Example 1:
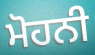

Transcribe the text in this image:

ਮੋਹਨੀ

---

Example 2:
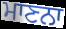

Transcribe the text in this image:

ਮਾਣਨਾ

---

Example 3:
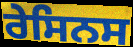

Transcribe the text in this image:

ਰੇਸਿਨਸ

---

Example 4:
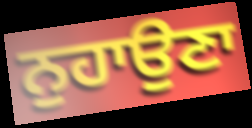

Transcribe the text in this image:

ਨੁਹਾਉਣਾ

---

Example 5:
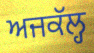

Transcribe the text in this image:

ਅਜਕੱਲ੍ਹ